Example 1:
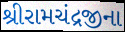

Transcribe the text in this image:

શ્રીરામચંદ્રજીના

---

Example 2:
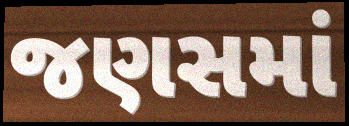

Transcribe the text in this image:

જણસમાં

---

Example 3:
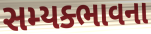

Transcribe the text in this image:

સમ્યક્ભાવના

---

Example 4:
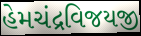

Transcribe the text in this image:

હેમચંદ્રવિજયજી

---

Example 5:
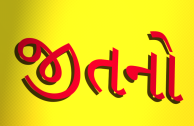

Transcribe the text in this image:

જીતનો